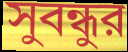
সুবন্ধুর